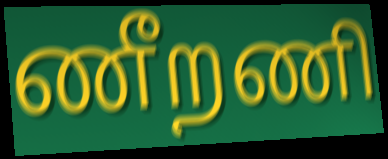
ணீறணி